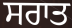
ਸਰਾਤ